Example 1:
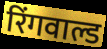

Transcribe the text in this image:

रिंगवाल्ड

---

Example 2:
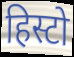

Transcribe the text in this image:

हिस्टो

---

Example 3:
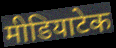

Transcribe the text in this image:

मीडियाटेक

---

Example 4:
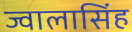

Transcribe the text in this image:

ज्वालासिंह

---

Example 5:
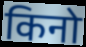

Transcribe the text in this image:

किनो